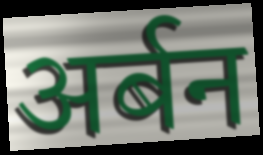
अर्बन